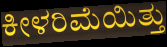
ಕೀಳರಿಮೆಯಿತ್ತು